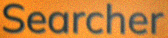
Searcher